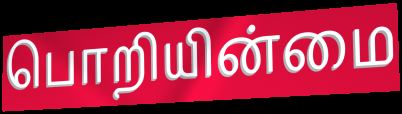
பொறியின்மை